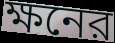
ক্ষনের